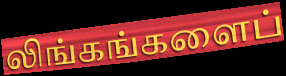
லிங்கங்களைப்